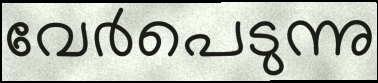
വേർപെടുന്നു